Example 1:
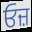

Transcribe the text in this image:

ਓਜ਼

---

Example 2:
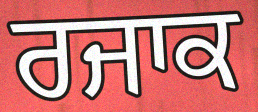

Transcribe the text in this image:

ਰਜਾਕ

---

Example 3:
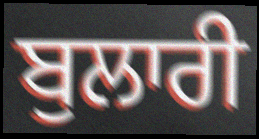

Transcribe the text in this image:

ਬੁਲਾਰੀ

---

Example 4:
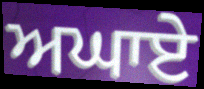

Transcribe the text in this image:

ਅਘਾਏ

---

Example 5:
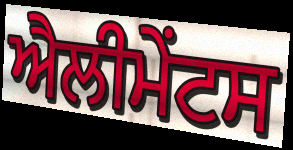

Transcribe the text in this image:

ਐਲੀਮੇੰਟਸ